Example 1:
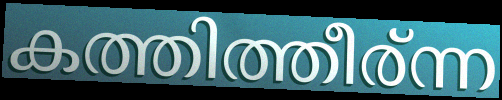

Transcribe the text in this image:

കത്തിത്തീര്ന്ന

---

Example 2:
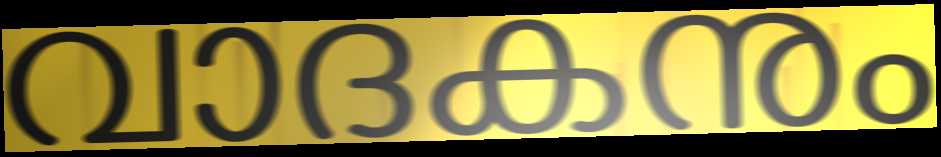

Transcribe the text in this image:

വാദകനും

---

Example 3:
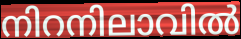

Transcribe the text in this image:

നിറനിലാവിൽ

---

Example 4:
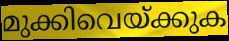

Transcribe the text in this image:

മുക്കിവെയ്ക്കുക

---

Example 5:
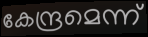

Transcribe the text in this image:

കേന്ദ്രമെന്ന്